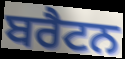
ਬਰੈਟਨ